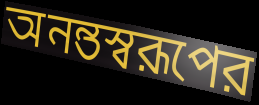
অনন্তস্বরূপের